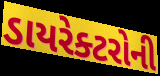
ડાયરેક્ટરોની